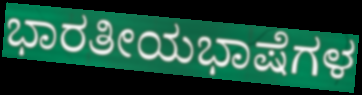
ಭಾರತೀಯಭಾಷೆಗಳ